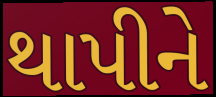
થાપીને